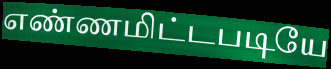
எண்ணமிட்டபடியே